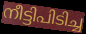
നീട്ടിപിടിച്ച